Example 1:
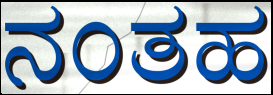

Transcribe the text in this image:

ನಂತಹ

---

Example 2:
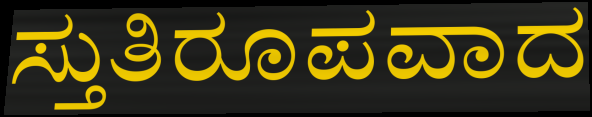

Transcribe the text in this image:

ಸ್ತುತಿರೂಪವಾದ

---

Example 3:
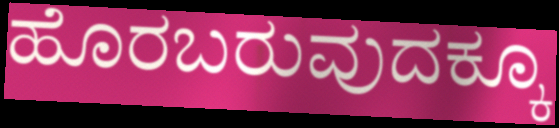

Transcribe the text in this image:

ಹೊರಬರುವುದಕ್ಕೂ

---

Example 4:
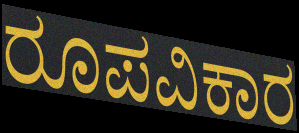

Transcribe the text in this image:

ರೂಪವಿಕಾರ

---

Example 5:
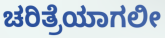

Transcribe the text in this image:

ಚರಿತ್ರೆಯಾಗಲೀ